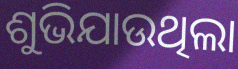
ଶୁଭିଯାଉଥିଲା